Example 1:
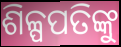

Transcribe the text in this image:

ଶିଳ୍ପପତିଙ୍କୁ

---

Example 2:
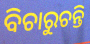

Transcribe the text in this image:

ବିଚାରୁଚନ୍ତି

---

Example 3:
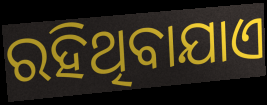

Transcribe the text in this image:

ରହିଥିବାଯାଏ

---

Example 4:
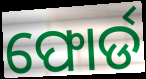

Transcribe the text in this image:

ଫୋର୍ଡ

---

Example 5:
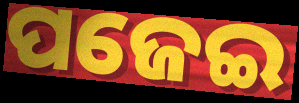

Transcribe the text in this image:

ପଜେଇ